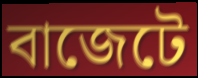
বাজেটে